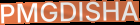
PMGDISHA